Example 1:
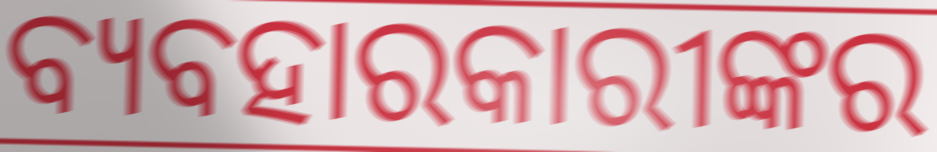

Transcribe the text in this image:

ବ୍ୟବହାରକାରୀଙ୍କର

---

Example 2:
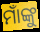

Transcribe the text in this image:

ମାଁଙ୍କୁ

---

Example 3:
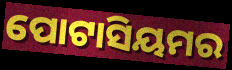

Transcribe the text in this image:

ପୋଟାସିୟମର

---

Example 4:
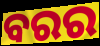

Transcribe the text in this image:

ବରର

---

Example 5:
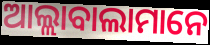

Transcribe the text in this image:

ଆଲ୍ଲାବାଲାମାନେ